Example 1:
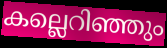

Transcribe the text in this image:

കല്ലെറിഞ്ഞും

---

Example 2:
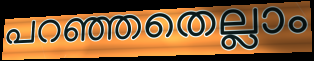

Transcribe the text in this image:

പറഞ്ഞതെല്ലാം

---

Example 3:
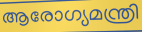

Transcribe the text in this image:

ആരോഗ്യമന്ത്രി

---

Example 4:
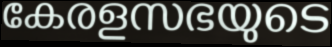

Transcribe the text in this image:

കേരളസഭയുടെ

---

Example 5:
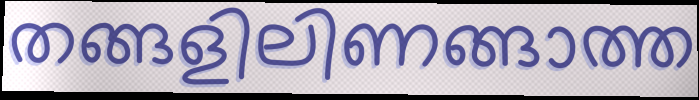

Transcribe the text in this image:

തങ്ങളിലിണങ്ങാത്ത